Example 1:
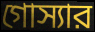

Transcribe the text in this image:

গোস্যার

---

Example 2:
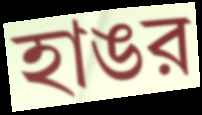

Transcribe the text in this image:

হাঙর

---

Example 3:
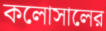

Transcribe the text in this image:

কলোসালের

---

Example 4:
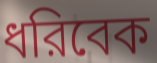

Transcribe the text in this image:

ধরিবেক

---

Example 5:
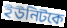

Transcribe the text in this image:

ইউনিটকে